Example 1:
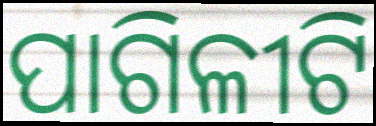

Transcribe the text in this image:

ପାଗିଳୀଟି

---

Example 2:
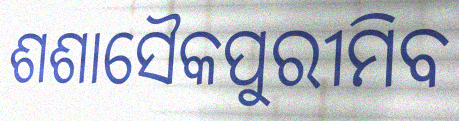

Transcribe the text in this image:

ଶଶାସୈକପୁରୀମିବ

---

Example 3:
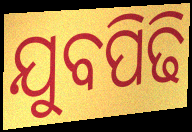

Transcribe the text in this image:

ଯୁବପିଢି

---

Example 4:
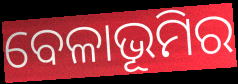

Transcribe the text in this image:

ବେଳାଭୂମିର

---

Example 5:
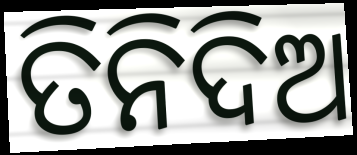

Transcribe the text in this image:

ତିନିଦିଅ